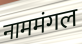
नाममंगल